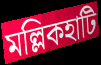
মল্লিকহাটি